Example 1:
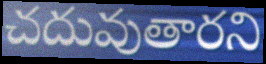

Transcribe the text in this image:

చదువుతారని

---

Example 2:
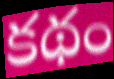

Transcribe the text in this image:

కథం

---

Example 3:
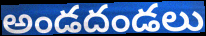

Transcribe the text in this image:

అండదండలు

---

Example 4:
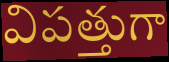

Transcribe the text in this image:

విపత్తుగా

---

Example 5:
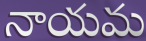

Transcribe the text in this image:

నాయమ